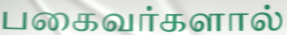
பகைவர்களால்